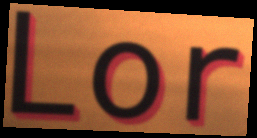
Lor